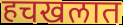
हचखलात